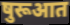
षुरूआत